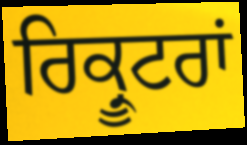
ਰਿਕ੍ਰੂਟਰਾਂ